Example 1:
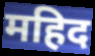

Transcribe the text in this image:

महिद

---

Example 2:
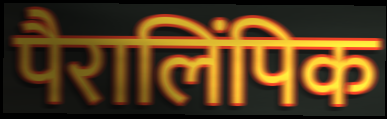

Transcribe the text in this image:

पैरालिंपिक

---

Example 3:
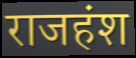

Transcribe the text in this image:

राजहंश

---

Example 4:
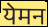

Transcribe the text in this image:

येमन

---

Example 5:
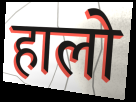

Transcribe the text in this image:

हालो